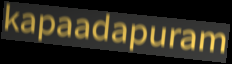
kapaadapuram